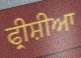
ਫ੍ਰੀਸ਼ੀਆ